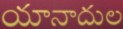
యానాదుల